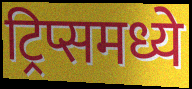
ट्रिप्समध्ये